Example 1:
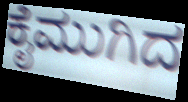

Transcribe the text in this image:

ಕೈಮುಗಿದ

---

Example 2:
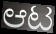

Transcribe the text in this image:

ಆಟ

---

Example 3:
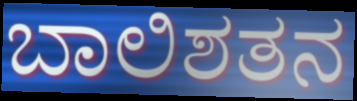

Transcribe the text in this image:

ಬಾಲಿಶತನ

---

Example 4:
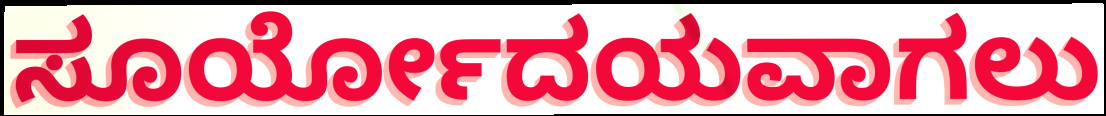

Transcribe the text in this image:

ಸೂರ್ಯೋದಯವಾಗಲು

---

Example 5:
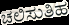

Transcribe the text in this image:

ಚಲಿಸುತಿಹ